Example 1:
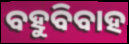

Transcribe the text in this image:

ବହୁବିବାହ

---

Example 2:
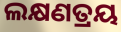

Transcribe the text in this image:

ଲକ୍ଷଣତ୍ରୟ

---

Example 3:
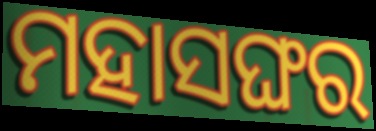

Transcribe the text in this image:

ମହାସଙ୍ଘର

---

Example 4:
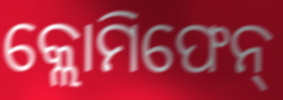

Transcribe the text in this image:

କ୍ଲୋମିଫେନ୍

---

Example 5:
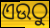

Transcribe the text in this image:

ଏଉଠୁ